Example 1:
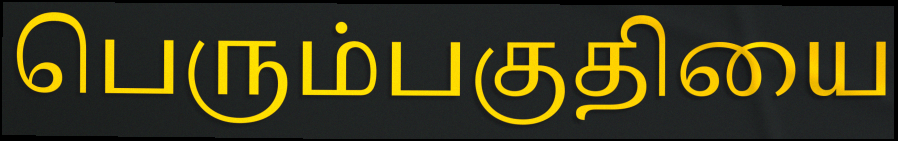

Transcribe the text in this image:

பெரும்பகுதியை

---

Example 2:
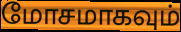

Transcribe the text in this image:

மோசமாகவும்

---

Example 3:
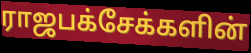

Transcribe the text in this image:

ராஜபக்சேக்களின்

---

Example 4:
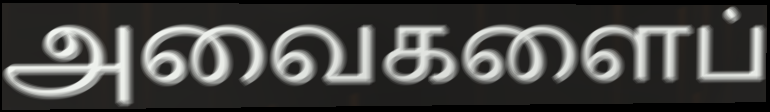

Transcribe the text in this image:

அவைகளைப்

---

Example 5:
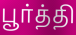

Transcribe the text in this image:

பூர்த்தி